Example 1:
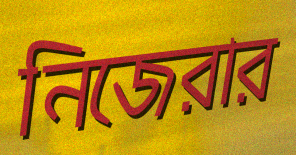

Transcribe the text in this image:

নিজেরার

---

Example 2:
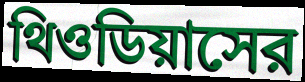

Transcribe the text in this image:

থিওডিয়াসের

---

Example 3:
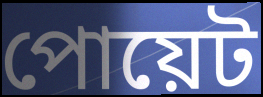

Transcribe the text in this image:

পোয়েট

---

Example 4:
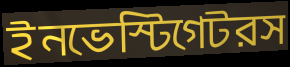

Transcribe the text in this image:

ইনভেস্টিগেটরস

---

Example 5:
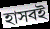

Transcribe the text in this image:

হাসবই